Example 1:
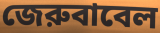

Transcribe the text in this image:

জেরুবাবেল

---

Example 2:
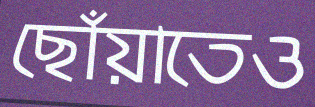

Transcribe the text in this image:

ছোঁয়াতেও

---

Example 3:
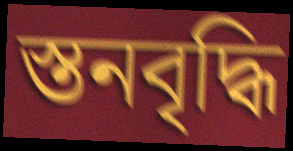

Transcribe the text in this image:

স্তনবৃদ্ধি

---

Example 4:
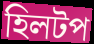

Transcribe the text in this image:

হিলটপ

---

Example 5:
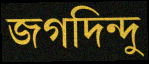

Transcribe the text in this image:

জগদিন্দু